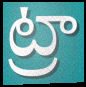
ట్రా